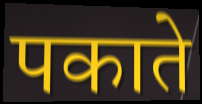
पकाते